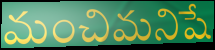
మంచిమనిషే